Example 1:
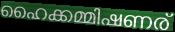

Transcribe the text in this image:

ഹൈക്കമ്മിഷണര്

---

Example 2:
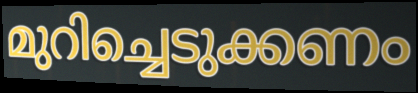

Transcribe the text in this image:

മുറിച്ചെടുക്കണം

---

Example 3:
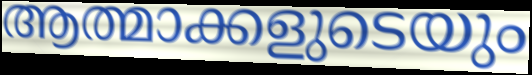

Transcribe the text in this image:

ആത്മാക്കളുടെയും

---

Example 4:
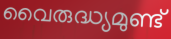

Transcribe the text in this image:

വൈരുദ്ധ്യമുണ്ട്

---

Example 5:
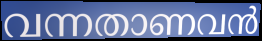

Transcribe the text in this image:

വന്നതാണവൻ